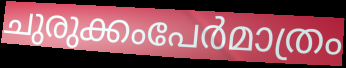
ചുരുക്കംപേർമാത്രം